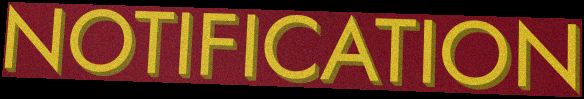
NOTIFICATION